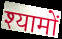
श्यामों